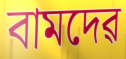
বামদেৱ